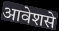
आवेशसे